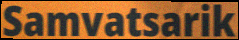
Samvatsarik